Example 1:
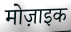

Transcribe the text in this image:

मोज़ाइक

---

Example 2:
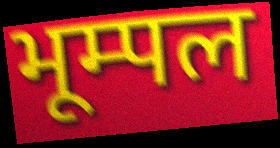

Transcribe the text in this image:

भूम्पल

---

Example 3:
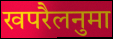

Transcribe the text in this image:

खपरैलनुमा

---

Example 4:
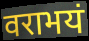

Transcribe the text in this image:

वराभयं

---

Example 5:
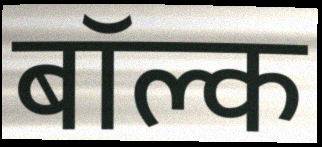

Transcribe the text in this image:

बॉल्क